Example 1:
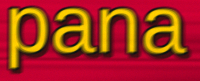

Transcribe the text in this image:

pana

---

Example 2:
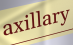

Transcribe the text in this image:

axillary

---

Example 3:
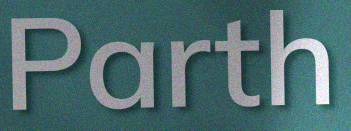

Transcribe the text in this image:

Parth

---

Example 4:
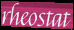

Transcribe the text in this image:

rheostat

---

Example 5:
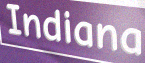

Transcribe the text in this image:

Indiana